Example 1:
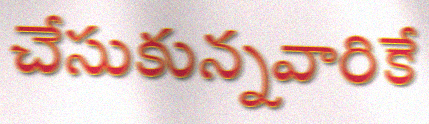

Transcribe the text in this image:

చేసుకున్నవారికే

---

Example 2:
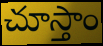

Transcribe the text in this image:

చూస్తాం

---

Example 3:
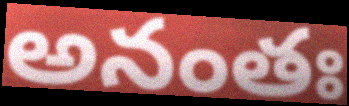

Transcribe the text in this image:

అనంతః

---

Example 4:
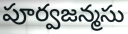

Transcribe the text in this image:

పూర్వజన్మసు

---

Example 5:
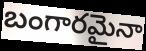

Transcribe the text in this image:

బంగారమైనా